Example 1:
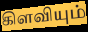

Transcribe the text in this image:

கிளவியும்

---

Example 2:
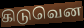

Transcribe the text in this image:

கிடுவென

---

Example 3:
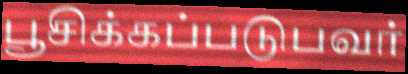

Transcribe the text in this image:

பூசிக்கப்படுபவர்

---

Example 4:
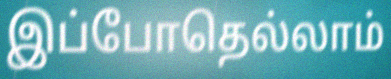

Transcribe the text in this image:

இப்போதெல்லாம்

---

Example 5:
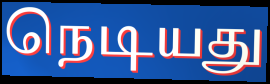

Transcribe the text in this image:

நெடியது